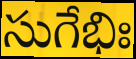
సుగేభిః